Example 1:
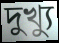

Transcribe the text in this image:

দুখ্যু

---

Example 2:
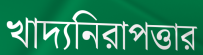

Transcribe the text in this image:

খাদ্যনিরাপত্তার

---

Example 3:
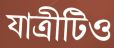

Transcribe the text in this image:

যাত্রীটিও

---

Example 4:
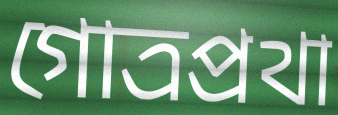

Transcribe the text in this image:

গোত্রপ্রথা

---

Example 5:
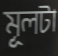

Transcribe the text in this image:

মূলটা